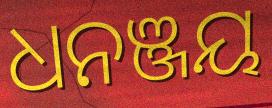
ଧନଞ୍ଜୟ